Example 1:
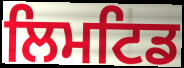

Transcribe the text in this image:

ਲਿਮਟਿਡ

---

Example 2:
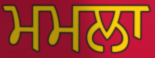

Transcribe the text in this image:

ਮਮਲਾ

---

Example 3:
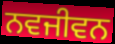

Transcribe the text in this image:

ਨਵਜੀਵਨ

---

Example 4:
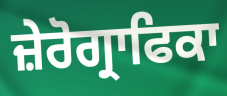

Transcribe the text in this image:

ਜ਼ੇਰੋਗ੍ਰਾਫਿਕਾ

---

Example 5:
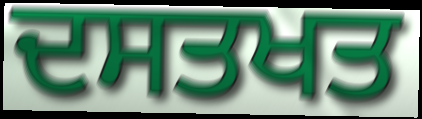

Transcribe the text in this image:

ਦਸਤਖਤ